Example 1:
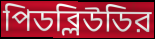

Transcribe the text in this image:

পিডব্লিউডির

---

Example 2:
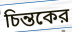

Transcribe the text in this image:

চিন্তকের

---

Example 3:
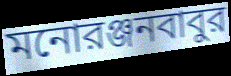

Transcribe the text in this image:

মনোরঞ্জনবাবুর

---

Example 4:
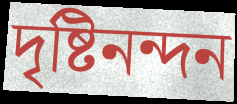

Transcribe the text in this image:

দৃষ্টিনন্দন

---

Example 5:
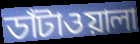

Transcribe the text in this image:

ডাঁটাওয়ালা